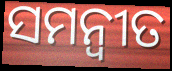
ସମନ୍ଵୀତ